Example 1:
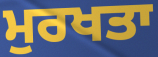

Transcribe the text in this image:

ਮੁਰਖਤਾ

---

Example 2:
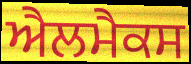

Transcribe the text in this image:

ਐਲਮੈਕਸ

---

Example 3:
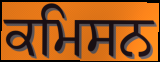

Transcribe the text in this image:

ਕਮਿਸਨ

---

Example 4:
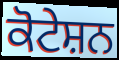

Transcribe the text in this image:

ਕੋਟੇਸ਼ਨ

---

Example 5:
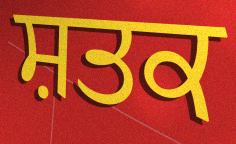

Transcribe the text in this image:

ਸ਼ਤਕ